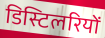
डिस्टिलरियों